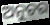
ଅନୁଚର